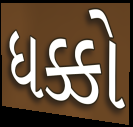
ધક્કો